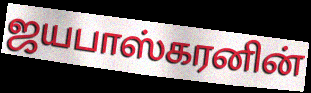
ஜயபாஸ்கரனின்